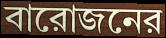
বারোজনের